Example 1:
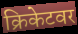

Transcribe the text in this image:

क्रिकेटवर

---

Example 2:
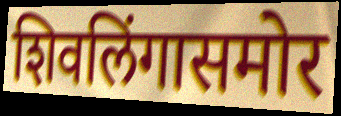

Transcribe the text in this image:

शिवलिंगासमोर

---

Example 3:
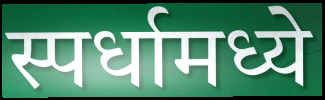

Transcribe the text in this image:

स्पर्धामध्ये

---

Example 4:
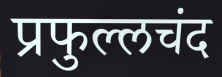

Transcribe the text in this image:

प्रफुल्लचंद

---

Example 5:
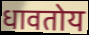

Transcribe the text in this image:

धावतोय